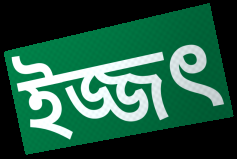
ইজ্জৎ